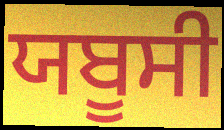
ਯਬੂਸੀ